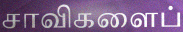
சாவிகளைப்